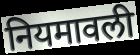
नियमावली